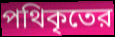
পথিকৃতের